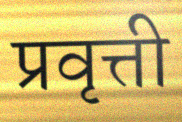
प्रवृत्ती